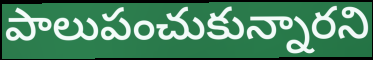
పాలుపంచుకున్నారని